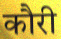
कौरी